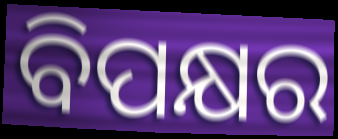
ବିପକ୍ଷର